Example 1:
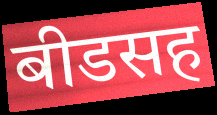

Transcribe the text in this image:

बीडसह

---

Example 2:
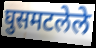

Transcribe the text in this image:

घुसमटलेले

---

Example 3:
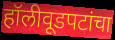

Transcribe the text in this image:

हॉलीवूडपटांचा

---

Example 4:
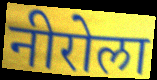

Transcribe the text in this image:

नीरोला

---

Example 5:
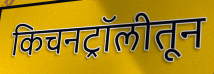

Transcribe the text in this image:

किचनट्रॉलीतून